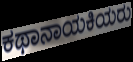
ಕಥಾನಾಯಕಿಯರು